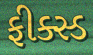
ફીક્સ્ડ